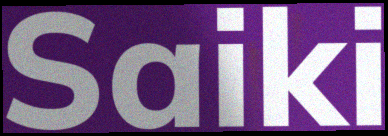
Saiki